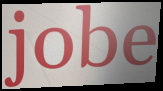
jobe